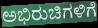
ಅಭಿರುಚಿಗಳಿಗೆ